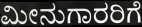
ಮೀನುಗಾರರಿಗೆ